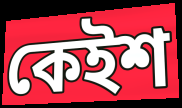
কেইশ